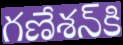
గణేశన్‍కి